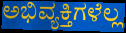
ಅಭಿವ್ಯಕ್ತಿಗಳೆಲ್ಲ